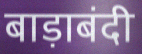
बाड़ाबंदी